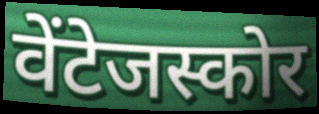
वेंटेजस्कोर